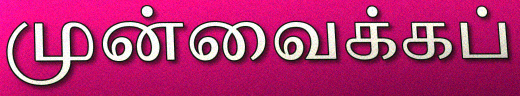
முன்வைக்கப்